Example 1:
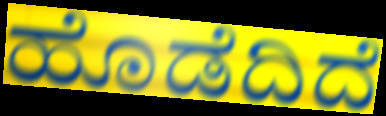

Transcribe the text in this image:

ಹೊಡೆದಿದೆ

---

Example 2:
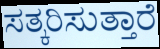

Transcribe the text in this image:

ಸತ್ಕರಿಸುತ್ತಾರೆ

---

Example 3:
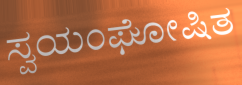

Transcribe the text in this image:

ಸ್ವಯಂಘೋಷಿತ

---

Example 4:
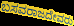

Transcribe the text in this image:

ಬಸವರಾಜದೇವರು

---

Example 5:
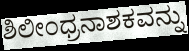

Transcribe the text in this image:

ಶಿಲೀಂಧ್ರನಾಶಕವನ್ನು